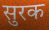
सुरक